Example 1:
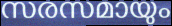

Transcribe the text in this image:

സരസമായും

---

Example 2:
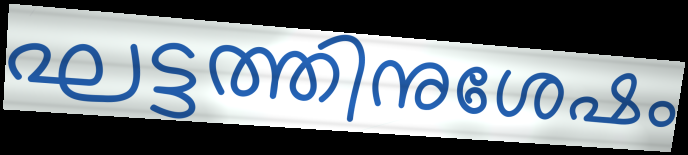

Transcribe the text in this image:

ഘട്ടത്തിനുശേഷം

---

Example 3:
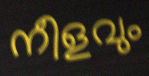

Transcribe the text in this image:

നീളവും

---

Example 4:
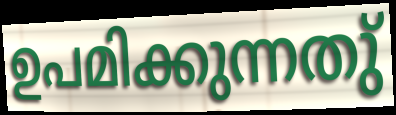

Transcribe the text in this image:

ഉപമിക്കുന്നതു്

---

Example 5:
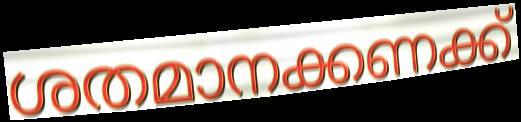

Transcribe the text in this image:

ശതമാനക്കണക്ക്